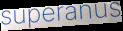
superanus